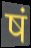
षं